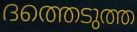
ദത്തെടുത്ത